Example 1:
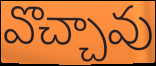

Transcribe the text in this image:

వొచ్చావు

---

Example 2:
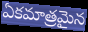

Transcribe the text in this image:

ఏకమాత్రమైన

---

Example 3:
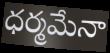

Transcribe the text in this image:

ధర్మమేనా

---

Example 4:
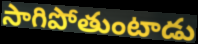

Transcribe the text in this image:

సాగిపోతుంటాడు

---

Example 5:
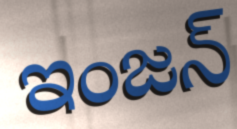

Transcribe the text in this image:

ఇంజన్